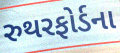
રુથરફોર્ડના